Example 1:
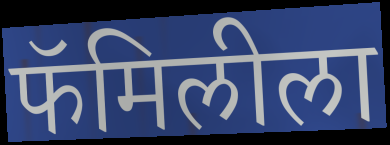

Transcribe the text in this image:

फॅमिलीला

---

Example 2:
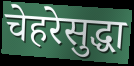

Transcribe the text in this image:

चेहरेसुद्धा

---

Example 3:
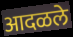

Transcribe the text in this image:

आदळले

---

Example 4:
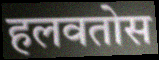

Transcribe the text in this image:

हलवतोस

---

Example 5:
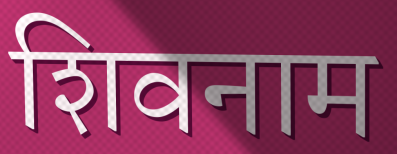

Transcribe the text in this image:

शिवनाम